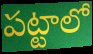
పట్టాలో